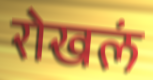
रोखलं